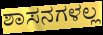
ಶಾಸನಗಳಲ್ಲ